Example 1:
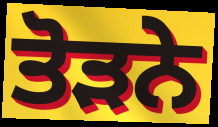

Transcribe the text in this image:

ਤੋੜਨੇ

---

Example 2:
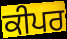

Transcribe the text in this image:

ਕੀਪਰ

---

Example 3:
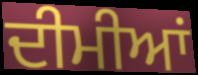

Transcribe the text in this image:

ਦੀਮੀਆਂ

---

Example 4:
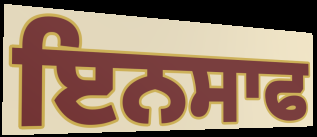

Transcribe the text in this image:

ਇਨਸਾਫ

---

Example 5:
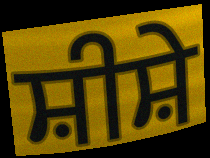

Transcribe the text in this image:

ਸ਼ੀਸ਼ੇ